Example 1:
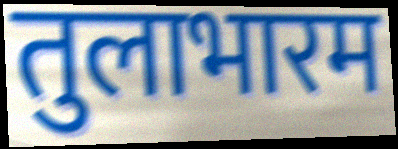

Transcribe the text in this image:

तुलाभारम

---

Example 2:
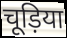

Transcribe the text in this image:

चूड़िया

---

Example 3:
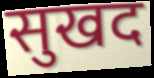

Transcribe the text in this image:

सुखद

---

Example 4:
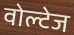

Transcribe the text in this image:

वोल्टेज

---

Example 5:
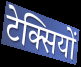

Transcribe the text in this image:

टेक्सियों